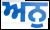
ਅਨੁ